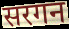
सरगन